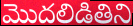
మొదలిడితిని